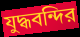
যুদ্ধবন্দির